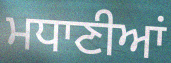
ਮਧਾਣੀਆਂ